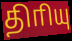
திரியு